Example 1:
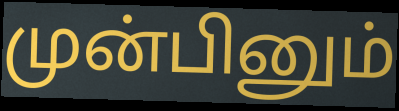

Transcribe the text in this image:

முன்பினும்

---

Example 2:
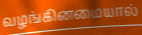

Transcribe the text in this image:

வழங்கினமையால்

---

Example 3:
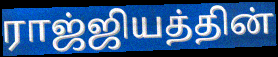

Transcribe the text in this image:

ராஜ்ஜியத்தின்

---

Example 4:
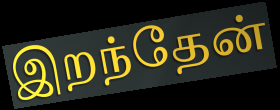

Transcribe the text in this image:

இறந்தேன்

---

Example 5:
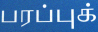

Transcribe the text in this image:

பரப்புக்